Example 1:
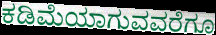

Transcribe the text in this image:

ಕಡಿಮೆಯಾಗುವವರೆಗೂ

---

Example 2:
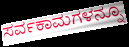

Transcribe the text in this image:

ಸರ್ವಕಾಮಗಳನ್ನೂ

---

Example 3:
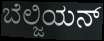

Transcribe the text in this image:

ಬೆಲ್ಜಿಯನ್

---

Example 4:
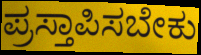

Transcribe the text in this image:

ಪ್ರಸ್ತಾಪಿಸಬೇಕು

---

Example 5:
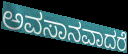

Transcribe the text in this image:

ಅವಸಾನವಾದರೆ